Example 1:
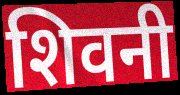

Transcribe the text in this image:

शिवनी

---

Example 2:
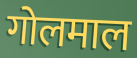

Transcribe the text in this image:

गोलमाल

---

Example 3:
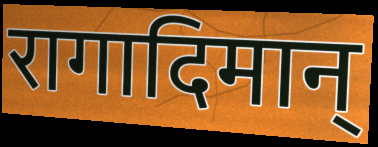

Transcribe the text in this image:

रागादिमान्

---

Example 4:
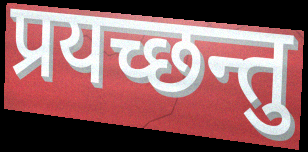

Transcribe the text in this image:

प्रयच्छन्तु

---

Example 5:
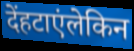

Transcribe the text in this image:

देंहटाएंलेकिन